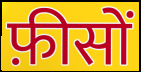
फ़ीसों